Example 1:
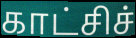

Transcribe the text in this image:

காட்சிச்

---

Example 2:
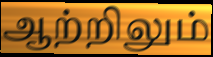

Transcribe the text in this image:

ஆற்றிலும்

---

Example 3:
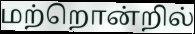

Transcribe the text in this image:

மற்றொன்றில்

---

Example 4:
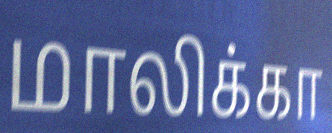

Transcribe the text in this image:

மாலிக்கா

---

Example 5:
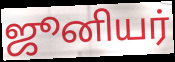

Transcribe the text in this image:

ஜூனியர்